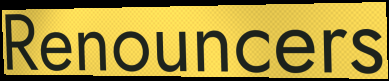
Renouncers